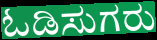
ಓಡಿಸುಗರು